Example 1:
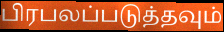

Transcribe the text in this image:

பிரபலப்படுத்தவும்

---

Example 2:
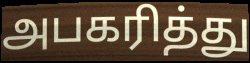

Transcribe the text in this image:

அபகரித்து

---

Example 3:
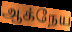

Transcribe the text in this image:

ஆக்நேய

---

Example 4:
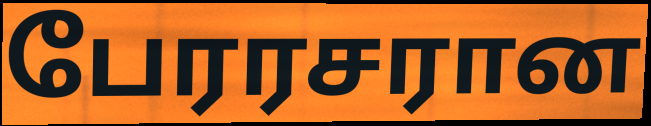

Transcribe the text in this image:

பேரரசரான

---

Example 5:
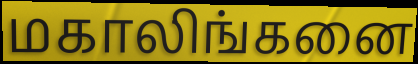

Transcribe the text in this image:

மகாலிங்கனை